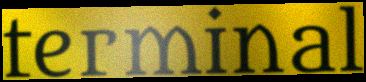
terminal